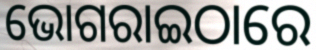
ଭୋଗରାଇଠାରେ